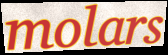
molars